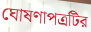
ঘোষণাপত্রটির